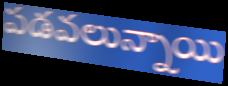
పడవలున్నాయి